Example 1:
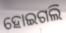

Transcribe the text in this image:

ହୋଇଗଲି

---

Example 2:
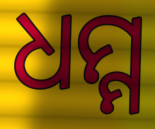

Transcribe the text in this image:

ଧମ୍ମ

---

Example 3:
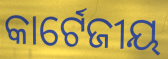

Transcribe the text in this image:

କାର୍ଟେଜୀୟ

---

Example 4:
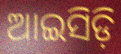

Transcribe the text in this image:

ଆଇସିଡ଼ି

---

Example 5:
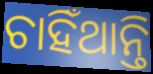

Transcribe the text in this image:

ଚାହିଁଥାନ୍ତି